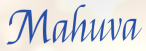
Mahuva